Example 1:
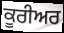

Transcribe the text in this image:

ਕੂਰੀਅਰ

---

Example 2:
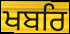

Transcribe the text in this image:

ਖਬਰਿ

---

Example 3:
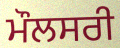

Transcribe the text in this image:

ਮੌਲਸਰੀ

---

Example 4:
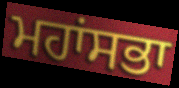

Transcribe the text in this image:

ਮਹਾਂਸਭਾ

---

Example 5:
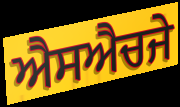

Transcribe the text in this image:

ਐਸਐਚਜੇ